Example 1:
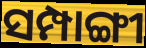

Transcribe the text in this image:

ସମ୍ପାଙ୍ଗୀ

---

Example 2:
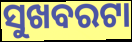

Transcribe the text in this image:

ସୁଖବରଟା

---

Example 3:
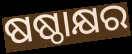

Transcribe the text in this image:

ଷଷ୍ଠାକ୍ଷର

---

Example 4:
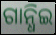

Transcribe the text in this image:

ଗାନ୍ଧିଇ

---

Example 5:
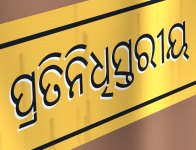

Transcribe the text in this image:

ପ୍ରତିନିଧିସ୍ତରୀୟ